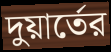
দুয়ার্তের